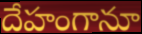
దేహంగానూ